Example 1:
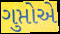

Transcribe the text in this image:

ગુપ્તોએ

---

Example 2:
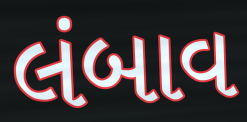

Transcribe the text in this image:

લંબાવ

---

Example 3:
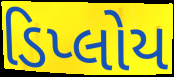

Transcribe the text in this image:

ડિપ્લોય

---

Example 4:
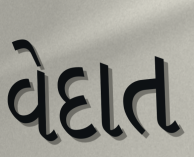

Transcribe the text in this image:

વેદાત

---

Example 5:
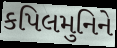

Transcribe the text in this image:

કપિલમુનિને